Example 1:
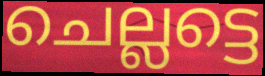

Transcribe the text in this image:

ചെല്ലട്ടെ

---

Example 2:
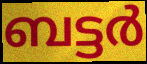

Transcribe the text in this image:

ബട്ടർ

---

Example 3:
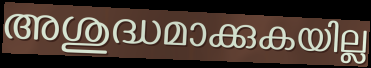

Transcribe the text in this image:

അശുദ്ധമാക്കുകയില്ല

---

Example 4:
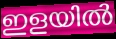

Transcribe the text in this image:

ഇളയിൽ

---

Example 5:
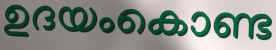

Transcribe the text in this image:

ഉദയംകൊണ്ട